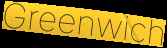
Greenwich